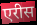
एरीस